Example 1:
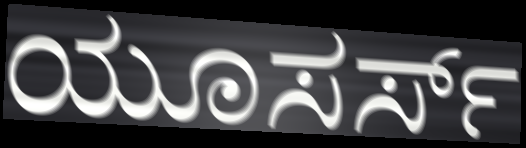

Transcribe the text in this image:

ಯೂಸರ್ಸ್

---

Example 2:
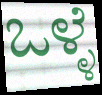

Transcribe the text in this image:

ಒಳ್ಳೆ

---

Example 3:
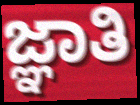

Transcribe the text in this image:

ಜ್ಞಾತಿ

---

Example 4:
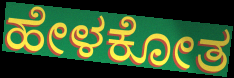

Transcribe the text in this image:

ಹೇಳಕೋತ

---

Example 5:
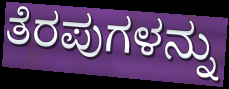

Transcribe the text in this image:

ತೆರಪುಗಳನ್ನು